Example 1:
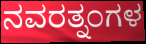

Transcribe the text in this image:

ನವರತ್ನಂಗಳ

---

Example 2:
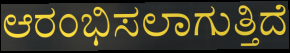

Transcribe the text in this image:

ಆರಂಭಿಸಲಾಗುತ್ತಿದೆ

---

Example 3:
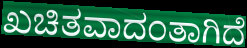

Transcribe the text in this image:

ಖಚಿತವಾದಂತಾಗಿದೆ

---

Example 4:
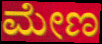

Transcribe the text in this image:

ಮೇಣ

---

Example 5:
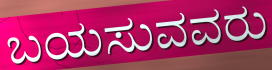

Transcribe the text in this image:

ಬಯಸುವವರು